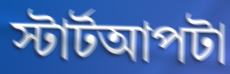
স্টার্টআপটা